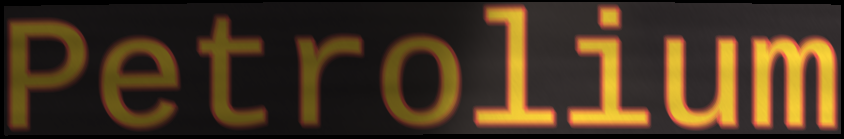
Petrolium